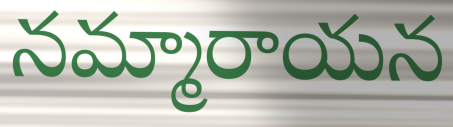
నమ్మారాయన